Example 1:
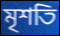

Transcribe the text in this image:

মৃশতি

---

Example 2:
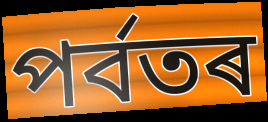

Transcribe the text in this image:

পৰ্বতৰ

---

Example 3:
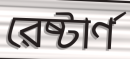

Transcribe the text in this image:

ৱেষ্টাৰ্ণ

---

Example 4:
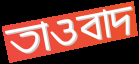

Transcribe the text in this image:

তাওবাদ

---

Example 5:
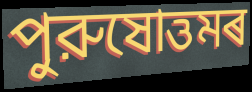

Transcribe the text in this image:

পুৰুষোত্তমৰ